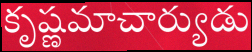
కృష్ణమాచార్యుడు